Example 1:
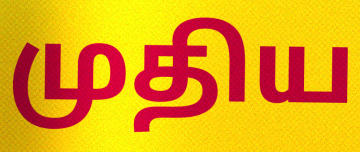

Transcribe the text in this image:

முதிய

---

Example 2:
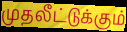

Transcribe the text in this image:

முதலீட்டுக்கும்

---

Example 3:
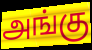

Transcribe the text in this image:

அங்கு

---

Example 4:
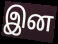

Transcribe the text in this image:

இன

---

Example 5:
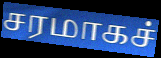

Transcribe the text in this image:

சரமாகச்